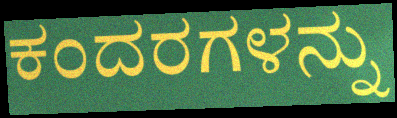
ಕಂದರಗಳನ್ನು